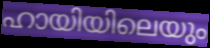
ഹായിയിലെയും